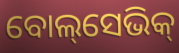
ବୋଲ୍‌ସେଭିକ୍